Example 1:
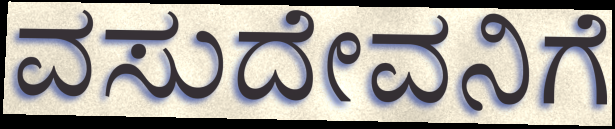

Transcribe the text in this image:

ವಸುದೇವನಿಗೆ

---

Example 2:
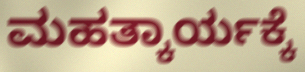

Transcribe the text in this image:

ಮಹತ್ಕಾರ್ಯಕ್ಕೆ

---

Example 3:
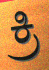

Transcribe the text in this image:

ಕ್ರಿ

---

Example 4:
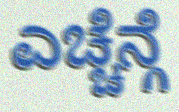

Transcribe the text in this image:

ಎಚ್ಚೆನ್ಗೆ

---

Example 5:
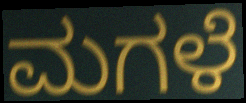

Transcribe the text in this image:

ಮಗಳೆ